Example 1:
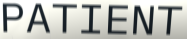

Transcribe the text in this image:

PATIENT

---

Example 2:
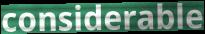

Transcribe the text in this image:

considerable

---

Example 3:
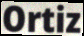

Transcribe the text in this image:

Ortiz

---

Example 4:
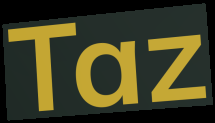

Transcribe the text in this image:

Taz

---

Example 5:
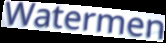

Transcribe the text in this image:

Watermen